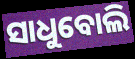
ସାଧୁବୋଲି